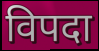
विपदा